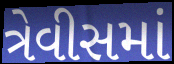
ત્રેવીસમાં